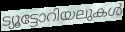
ട്യൂട്ടോറിയലുകൾ